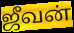
ஜீவன்